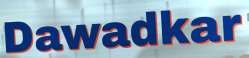
Dawadkar